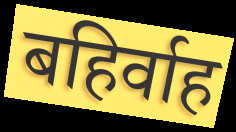
बहिर्वाह